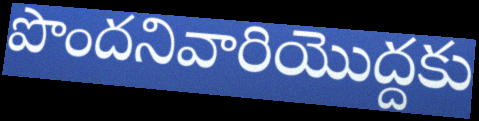
పొందనివారియొద్దకు